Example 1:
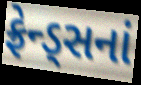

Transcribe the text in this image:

ફ્રેન્ડ્સનાં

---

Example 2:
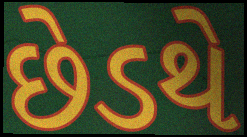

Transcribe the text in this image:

છેડથે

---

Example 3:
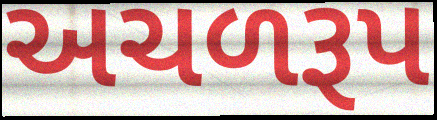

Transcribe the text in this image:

અચળરૂપ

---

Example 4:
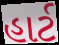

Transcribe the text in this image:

હાર્ટ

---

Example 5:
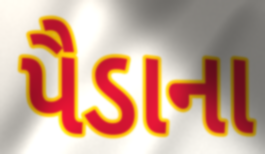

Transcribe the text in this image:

પૈડાના